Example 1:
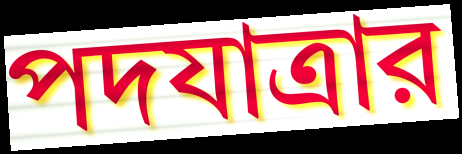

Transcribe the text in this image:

পদযাত্রার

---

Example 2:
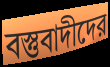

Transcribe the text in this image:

বস্তুবাদীদের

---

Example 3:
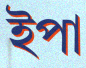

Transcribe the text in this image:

ইপা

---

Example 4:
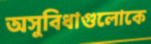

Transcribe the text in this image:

অসুবিধাগুলোকে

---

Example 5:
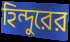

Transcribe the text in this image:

হিন্দুরের